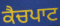
ਕੈਚਪਾਟ